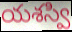
యశస్వి